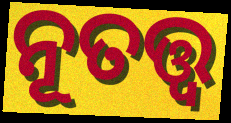
ନୂତତ୍ତ୍ଵ